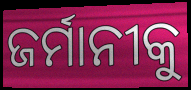
ଜର୍ମାନୀକୁ